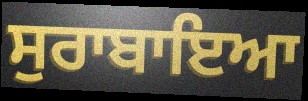
ਸੁਰਾਬਾਇਆ